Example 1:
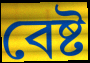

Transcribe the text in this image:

বেষ্ট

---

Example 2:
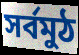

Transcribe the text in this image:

সৰ্বমুঠ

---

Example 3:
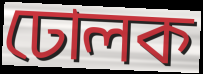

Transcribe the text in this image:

ঢোলক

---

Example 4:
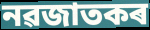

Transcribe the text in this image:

নৱজাতকৰ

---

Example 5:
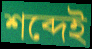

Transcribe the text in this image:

শব্দেই